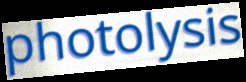
photolysis